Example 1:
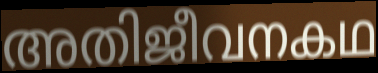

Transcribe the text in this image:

അതിജീവനകഥ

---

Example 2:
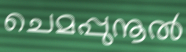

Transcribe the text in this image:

ചെമപ്പുനൂൽ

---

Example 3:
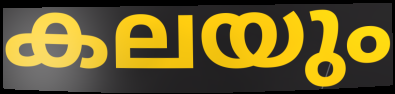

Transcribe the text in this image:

കലയും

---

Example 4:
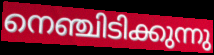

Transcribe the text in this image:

നെഞ്ചിടിക്കുന്നു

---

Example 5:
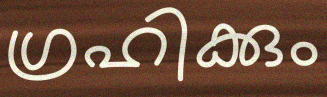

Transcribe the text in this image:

ഗ്രഹിക്കും